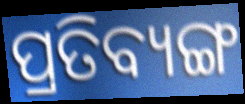
ପ୍ରତିବ୍ୟଙ୍ଗ